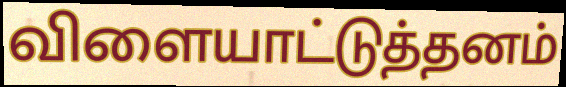
விளையாட்டுத்தனம்